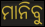
ମାନିବୁ